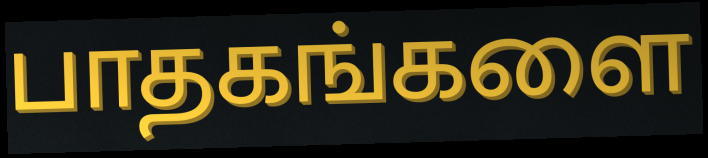
பாதகங்களை